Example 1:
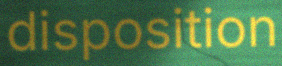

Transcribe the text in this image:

disposition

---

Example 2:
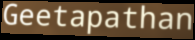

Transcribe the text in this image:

Geetapathan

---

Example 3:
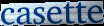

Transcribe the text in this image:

casette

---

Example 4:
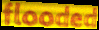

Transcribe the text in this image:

flooded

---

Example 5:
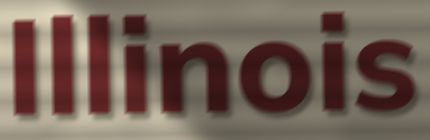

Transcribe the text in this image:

Illinois